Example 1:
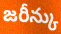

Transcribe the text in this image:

జరీన్కు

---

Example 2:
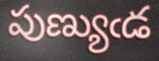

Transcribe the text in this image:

పుణ్యుఁడ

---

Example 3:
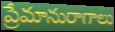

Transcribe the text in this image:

ప్రేమానురాగాలు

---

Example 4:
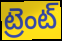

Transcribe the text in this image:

ట్రెంట్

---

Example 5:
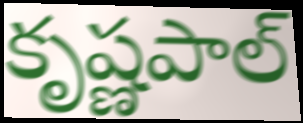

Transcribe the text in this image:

కృష్ణపాల్